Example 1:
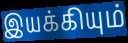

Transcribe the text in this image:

இயக்கியும்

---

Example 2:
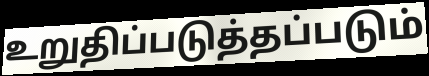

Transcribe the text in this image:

உறுதிப்படுத்தப்படும்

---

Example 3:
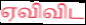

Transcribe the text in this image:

ஏவிவிட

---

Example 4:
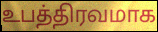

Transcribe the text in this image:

உபத்திரவமாக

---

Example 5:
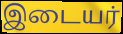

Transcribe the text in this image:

இடையர்